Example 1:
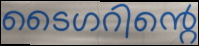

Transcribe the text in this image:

ടൈഗറിന്റെ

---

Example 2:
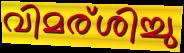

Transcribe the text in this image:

വിമര്ശിച്ചു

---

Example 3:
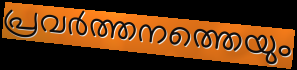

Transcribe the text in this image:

പ്രവർത്തനത്തെയും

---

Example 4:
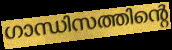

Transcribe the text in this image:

ഗാന്ധിസത്തിന്റെ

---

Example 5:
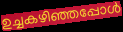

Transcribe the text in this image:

ഉച്ചകഴിഞ്ഞപ്പോൾ